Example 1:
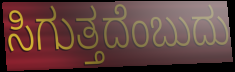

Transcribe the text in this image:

ಸಿಗುತ್ತದೆಂಬುದು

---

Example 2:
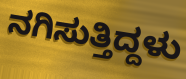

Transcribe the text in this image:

ನಗಿಸುತ್ತಿದ್ದಳು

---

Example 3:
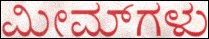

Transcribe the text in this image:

ಮೀಮ್‌ಗಳು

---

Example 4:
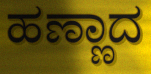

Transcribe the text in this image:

ಹಣ್ಣಾದ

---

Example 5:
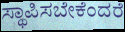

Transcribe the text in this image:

ಸ್ಥಾಪಿಸಬೇಕೆಂದರೆ